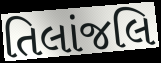
તિલાંજલિ